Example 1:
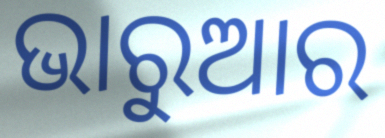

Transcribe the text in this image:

ଭାରୁଆର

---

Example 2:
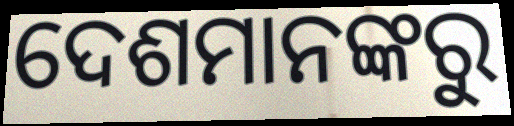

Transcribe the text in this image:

ଦେଶମାନଙ୍କରୁ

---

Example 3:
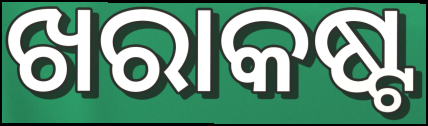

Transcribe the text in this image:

ଖରାକଷ୍ଟ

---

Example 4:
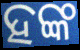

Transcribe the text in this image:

ହଙ୍କ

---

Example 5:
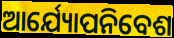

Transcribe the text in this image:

ଆର୍ଯ୍ୟୋପନିବେଶ